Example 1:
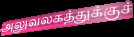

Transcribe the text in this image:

அலுவலகத்துக்குச்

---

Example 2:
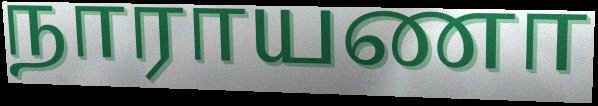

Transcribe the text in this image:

நாராயணா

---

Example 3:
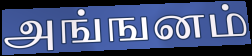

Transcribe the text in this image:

அங்ஙனம்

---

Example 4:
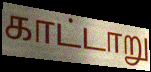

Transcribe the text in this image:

காட்டாறு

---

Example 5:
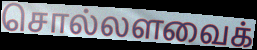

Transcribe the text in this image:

சொல்லளவைக்